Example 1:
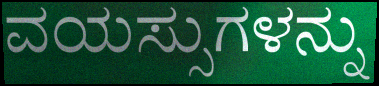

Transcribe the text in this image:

ವಯಸ್ಸುಗಳನ್ನು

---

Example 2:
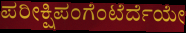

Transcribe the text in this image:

ಪರೀಕ್ಷಿಪಂಗೆಂಟೆರ್ದೆಯೇ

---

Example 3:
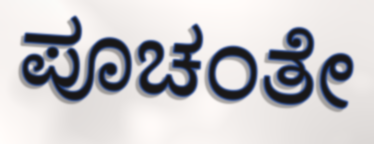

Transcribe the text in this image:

ಪೂಚಂತೇ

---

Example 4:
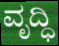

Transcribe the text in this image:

ವೃದ್ಧಿ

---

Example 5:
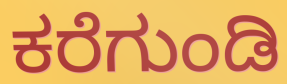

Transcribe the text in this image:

ಕರೆಗುಂಡಿ